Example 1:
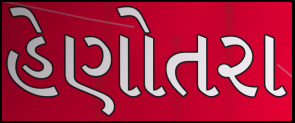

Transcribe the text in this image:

હેણોતરા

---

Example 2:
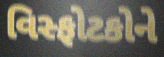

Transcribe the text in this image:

વિસ્ફોટકોને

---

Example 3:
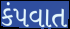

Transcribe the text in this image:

કંપવાત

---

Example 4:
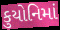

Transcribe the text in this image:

કુયોનિમાં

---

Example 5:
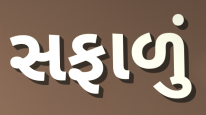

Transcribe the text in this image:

સફાળું